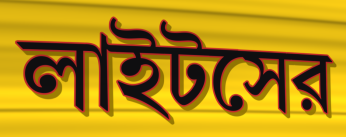
লাইটসের